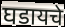
घडायचे